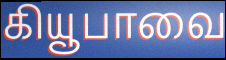
கியூபாவை